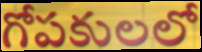
గోపకులలో